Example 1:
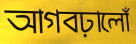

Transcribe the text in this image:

আগবঢ়ালোঁ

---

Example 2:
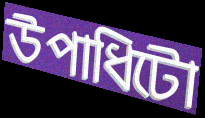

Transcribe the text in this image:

উপাধিটো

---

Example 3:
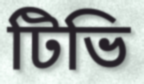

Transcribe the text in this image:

টিভি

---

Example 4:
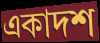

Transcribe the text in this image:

একাদশ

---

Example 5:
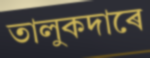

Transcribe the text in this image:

তালুকদাৰে